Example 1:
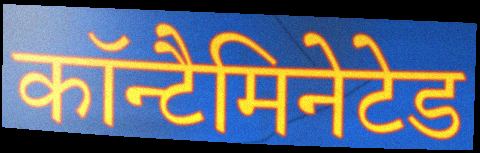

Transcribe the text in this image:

कॉन्टैमिनेटेड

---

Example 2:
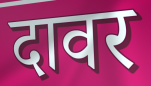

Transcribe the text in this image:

दावर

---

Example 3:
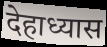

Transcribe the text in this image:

देहाध्यास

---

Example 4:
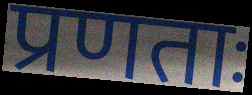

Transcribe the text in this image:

प्रणताः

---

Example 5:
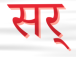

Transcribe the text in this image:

सर्